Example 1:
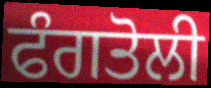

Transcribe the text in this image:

ਫੰਗਤੋਲੀ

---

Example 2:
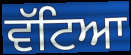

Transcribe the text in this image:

ਵੱਟਿਆ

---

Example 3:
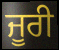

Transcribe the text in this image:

ਜੂਰੀ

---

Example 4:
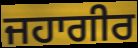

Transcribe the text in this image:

ਜਹਾਗੀਰ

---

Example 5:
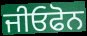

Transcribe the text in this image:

ਜੀਓਫੋਨ